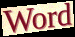
Word